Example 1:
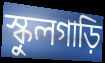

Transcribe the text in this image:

স্কুলগাড়ি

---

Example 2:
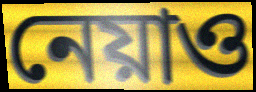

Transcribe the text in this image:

নেয়াও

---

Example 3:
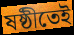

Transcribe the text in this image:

ষষ্ঠীতেই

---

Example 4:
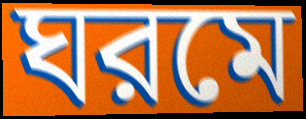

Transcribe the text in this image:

ঘরমে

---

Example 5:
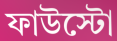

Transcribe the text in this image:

ফাউস্টো